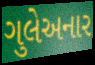
ગુલેઅનાર